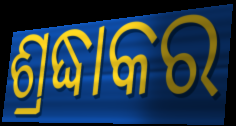
ଶ୍ରଦ୍ଧାକର